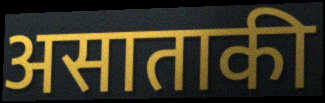
असाताकी